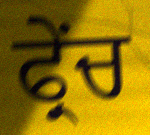
ਫ੍ਰੇਂਚ